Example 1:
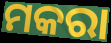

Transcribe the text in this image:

ମକରା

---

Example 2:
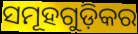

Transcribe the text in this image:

ସମୂହଗୁଡ଼ିକର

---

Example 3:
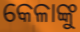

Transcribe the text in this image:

କେଳାଙ୍କୁ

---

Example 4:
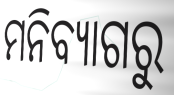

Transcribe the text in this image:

ମନିବ୍ୟାଗରୁ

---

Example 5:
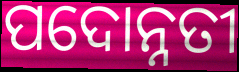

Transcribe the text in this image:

ପଦୋନ୍ନତୀ